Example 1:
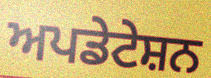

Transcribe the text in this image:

ਅਪਡੇਟੇਸ਼ਨ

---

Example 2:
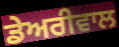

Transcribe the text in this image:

ਡੇਅਰੀਵਾਲ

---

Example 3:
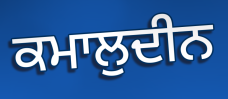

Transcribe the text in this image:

ਕਮਾਲੁਦੀਨ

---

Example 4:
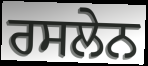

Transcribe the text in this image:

ਰਸਲੇਨ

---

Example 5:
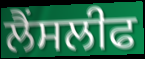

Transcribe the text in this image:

ਲੈਂਸਲੀਫ